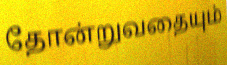
தோன்றுவதையும்